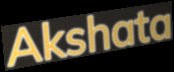
Akshata